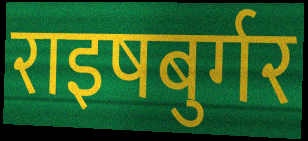
राइषबुर्गर